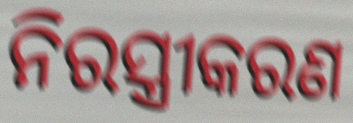
ନିରସ୍ତ୍ରୀକରଣ